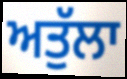
ਅਤੁੱਲਾ